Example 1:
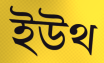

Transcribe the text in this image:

ইউথ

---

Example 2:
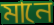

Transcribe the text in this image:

মানে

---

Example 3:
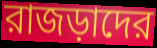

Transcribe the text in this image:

রাজড়াদের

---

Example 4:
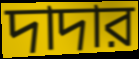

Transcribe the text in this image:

দাদার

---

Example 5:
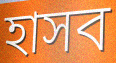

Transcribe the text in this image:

হাসব